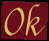
Ok